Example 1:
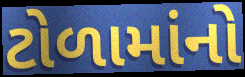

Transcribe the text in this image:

ટોળામાંનો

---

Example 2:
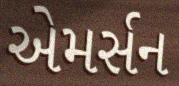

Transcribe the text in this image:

એમર્સન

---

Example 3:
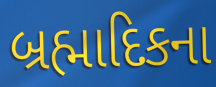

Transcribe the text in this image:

બ્રહ્માદિકના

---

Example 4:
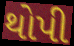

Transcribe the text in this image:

થોપી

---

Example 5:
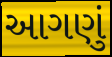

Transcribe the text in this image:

આગણું